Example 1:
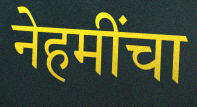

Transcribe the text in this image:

नेहमींचा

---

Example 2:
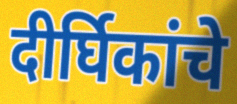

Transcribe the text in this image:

दीर्घिकांचे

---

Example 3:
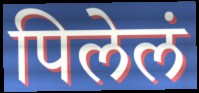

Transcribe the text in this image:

पिलेलं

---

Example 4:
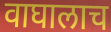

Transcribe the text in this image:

वाघालाच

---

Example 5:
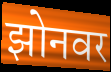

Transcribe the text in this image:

झोनवर